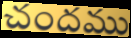
చందము